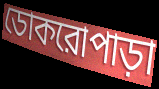
ডোকরোপাড়া